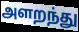
அளறந்து